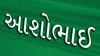
આશોભાઈ